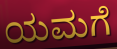
ಯಮಗೆ